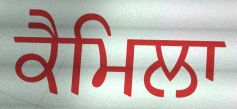
ਕੈਮਿਲਾ